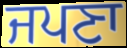
ਜਪਣਾ